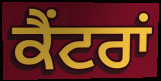
ਕੈਂਟਰਾਂ